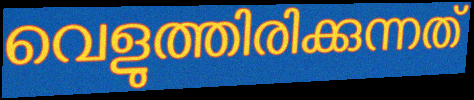
വെളുത്തിരിക്കുന്നത്